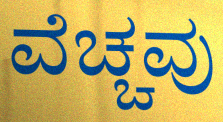
ವೆಚ್ಚವು